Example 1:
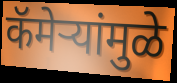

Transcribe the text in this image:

कॅमेऱ्यांमुळे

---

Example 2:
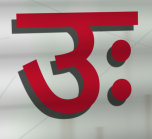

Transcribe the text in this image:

उः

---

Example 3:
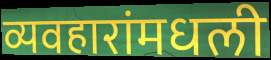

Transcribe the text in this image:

व्यवहारांमधली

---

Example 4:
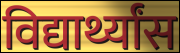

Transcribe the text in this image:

विद्यार्थ्यांस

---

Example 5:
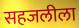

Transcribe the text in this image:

सहजलीला